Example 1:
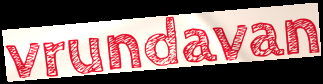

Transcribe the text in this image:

vrundavan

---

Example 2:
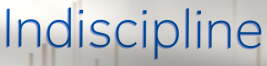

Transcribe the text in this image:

Indiscipline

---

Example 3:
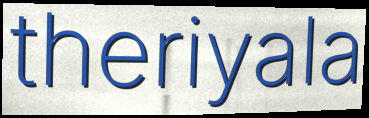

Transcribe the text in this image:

theriyala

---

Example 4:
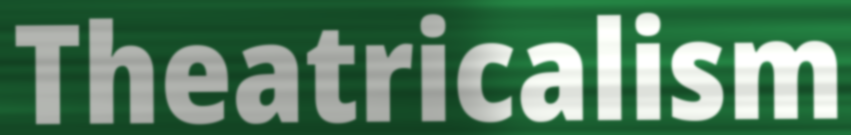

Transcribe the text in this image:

Theatricalism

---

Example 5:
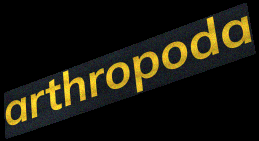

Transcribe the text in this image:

arthropoda